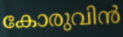
കോരുവിൻ